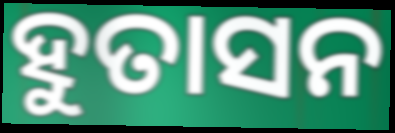
ହୁତାସନ